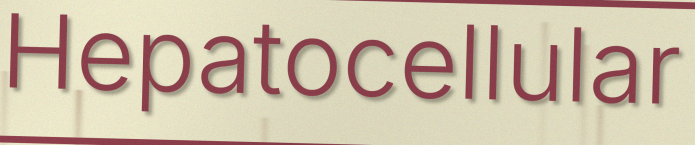
Hepatocellular